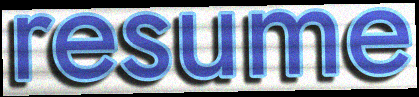
resume